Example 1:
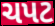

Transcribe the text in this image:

ચપટ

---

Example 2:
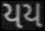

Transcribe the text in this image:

યય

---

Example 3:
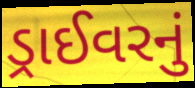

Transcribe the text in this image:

ડ્રાઈવરનું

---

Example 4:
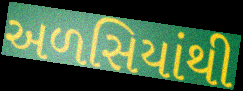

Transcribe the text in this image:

અળસિયાંથી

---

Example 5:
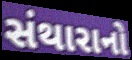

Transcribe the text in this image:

સંથારાનો